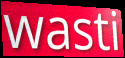
wasti